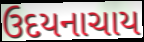
ઉદયનાચાય